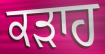
ਕੜਾਹ